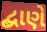
દ્બાણે